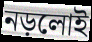
নড়লোই